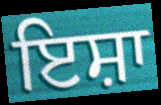
ਇਸ਼ਾ